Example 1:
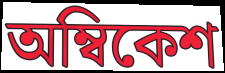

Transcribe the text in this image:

অম্বিকেশ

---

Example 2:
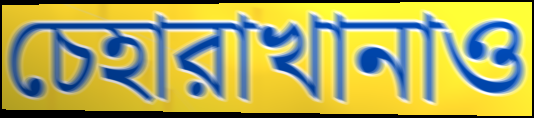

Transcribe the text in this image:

চেহারাখানাও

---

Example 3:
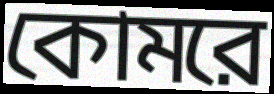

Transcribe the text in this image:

কোমরে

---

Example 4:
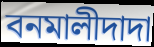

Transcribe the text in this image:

বনমালীদাদা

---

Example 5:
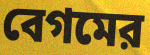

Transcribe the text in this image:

বেগমের